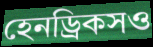
হেনড্রিকসও